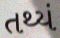
તથ્યં